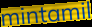
mintamil